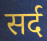
सर्द